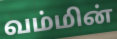
வம்மின்